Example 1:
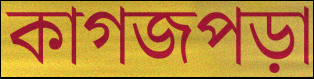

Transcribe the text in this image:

কাগজপড়া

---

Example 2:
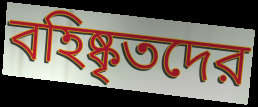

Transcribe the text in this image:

বহিষ্কৃতদের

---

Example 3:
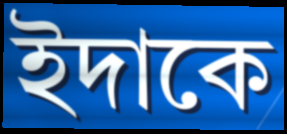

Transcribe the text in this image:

ইদাকে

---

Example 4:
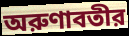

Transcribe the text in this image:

অরুণাবতীর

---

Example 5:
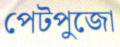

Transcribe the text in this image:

পেটপুজো